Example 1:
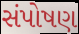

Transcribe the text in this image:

સંપોષણ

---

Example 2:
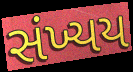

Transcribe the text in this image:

સંખ્યય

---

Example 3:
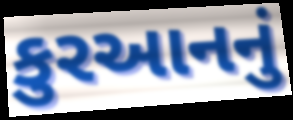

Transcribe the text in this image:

કુરઆનનું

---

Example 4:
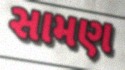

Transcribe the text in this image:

સામણ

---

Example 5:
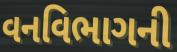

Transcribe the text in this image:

વનવિભાગની